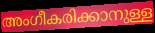
അംഗീകരിക്കാനുള്ള